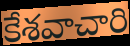
కేశవాచారి